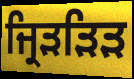
ਜ੍ਰਿੜੜਿੜ